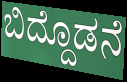
ಬಿದ್ದೊಡನೆ